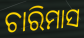
ଚାରିମାସ